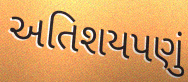
અતિશયપણું